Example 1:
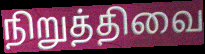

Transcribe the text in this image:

நிறுத்திவை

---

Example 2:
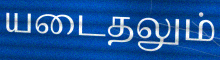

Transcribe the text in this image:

யடைதலும்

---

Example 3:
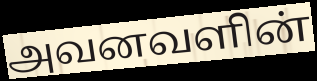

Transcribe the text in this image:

அவனவளின்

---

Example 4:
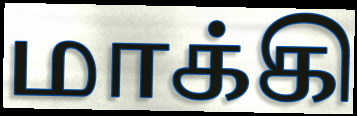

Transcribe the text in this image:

மாக்கி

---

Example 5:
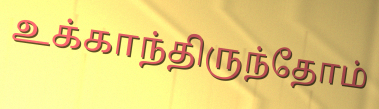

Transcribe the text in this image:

உக்காந்திருந்தோம்